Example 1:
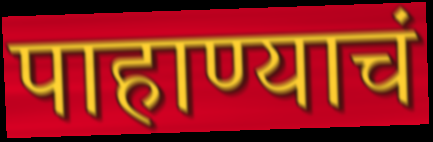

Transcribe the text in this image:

पाहाण्याचं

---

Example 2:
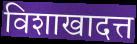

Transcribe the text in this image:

विशाखादत्त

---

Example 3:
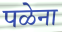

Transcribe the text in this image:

पळेना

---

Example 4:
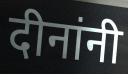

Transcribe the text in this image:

दीनांनी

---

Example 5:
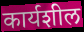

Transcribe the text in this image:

कार्यशील